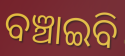
ବଞ୍ଚାଇବି